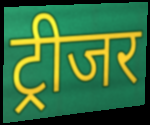
ट्रीजर